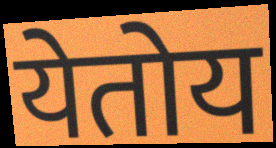
येतोय